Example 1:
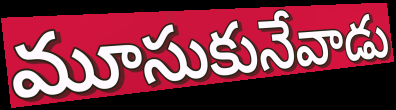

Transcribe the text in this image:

మూసుకునేవాడు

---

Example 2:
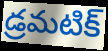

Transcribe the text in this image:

డ్రమటిక్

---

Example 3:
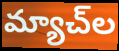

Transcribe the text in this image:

మ్యాచ్‌ల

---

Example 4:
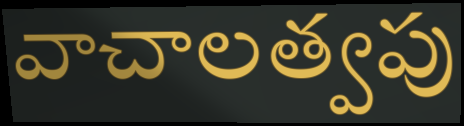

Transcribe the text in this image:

వాచాలత్వపు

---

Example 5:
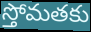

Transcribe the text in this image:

స్తోమతకు